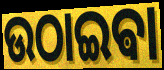
ଉଠାଇଵା